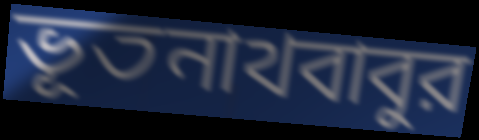
ভূতনাথবাবুর